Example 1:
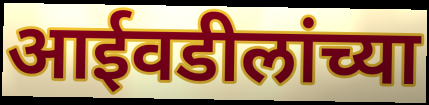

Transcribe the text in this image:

आईवडीलांच्या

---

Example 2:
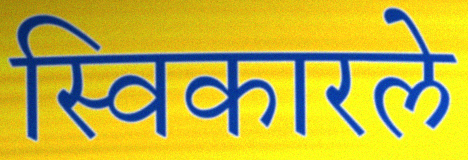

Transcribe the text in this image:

स्विकारले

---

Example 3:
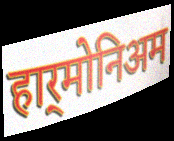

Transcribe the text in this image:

हार्मोनिअम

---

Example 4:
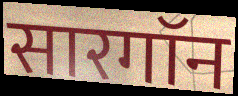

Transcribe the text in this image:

सारगॉन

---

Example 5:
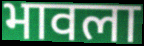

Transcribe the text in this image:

भावला